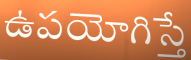
ఉపయోగిస్తే